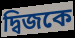
দ্বিজকে